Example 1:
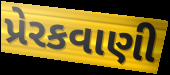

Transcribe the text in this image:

પ્રેરકવાણી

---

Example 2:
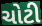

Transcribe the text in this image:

ચોટી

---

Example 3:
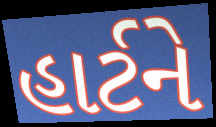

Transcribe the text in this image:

હાર્ટને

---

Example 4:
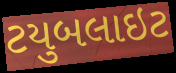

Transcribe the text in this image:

ટયુબલાઇટ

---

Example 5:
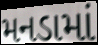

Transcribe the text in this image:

મનડામાં